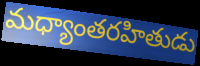
మధ్యాంతరహితుడు